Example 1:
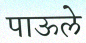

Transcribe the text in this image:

पाऊले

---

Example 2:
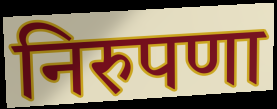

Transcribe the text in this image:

निरुपणा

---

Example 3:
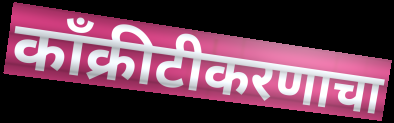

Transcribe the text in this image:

काँक्रीटीकरणाचा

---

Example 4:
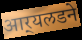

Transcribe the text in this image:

आर्यलडने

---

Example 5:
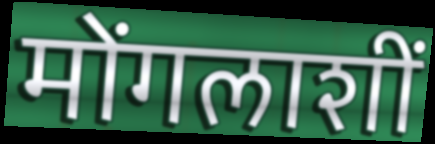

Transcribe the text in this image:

मोंगलाशीं